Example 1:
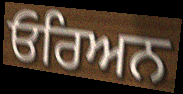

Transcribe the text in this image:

ਓਰਿਅਨ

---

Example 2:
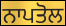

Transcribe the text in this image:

ਨਾਪਤੋਲ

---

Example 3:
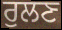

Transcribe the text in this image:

ਰੁਲਣ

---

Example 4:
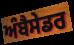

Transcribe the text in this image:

ਅੰਬੈਸੇਡਰ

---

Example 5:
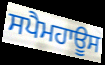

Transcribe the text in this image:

ਸਪੈਮਹਾਊਸ